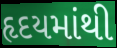
હૃદયમાંથી